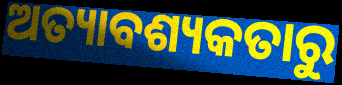
ଅତ୍ୟାବଶ୍ୟକତାରୁ